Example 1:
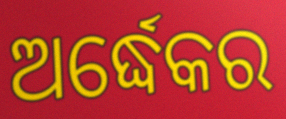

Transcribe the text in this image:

ଅର୍ଦ୍ଧେକର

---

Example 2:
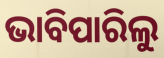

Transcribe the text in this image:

ଭାବିପାରିଲୁ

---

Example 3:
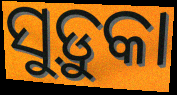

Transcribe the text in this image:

ସୁଡ଼ୁକା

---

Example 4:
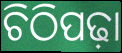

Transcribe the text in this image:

ଚିଠିପଢ଼ା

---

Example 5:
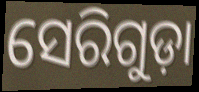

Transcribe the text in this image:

ସେରିଗୁଡ଼ା